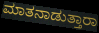
ಮಾತನಾಡುತ್ತಾರಾ